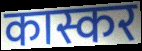
कास्कर